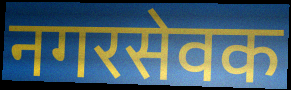
नगरसेवक